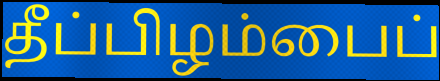
தீப்பிழம்பைப்